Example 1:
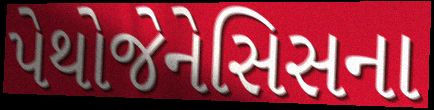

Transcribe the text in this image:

પેથોજેનેસિસના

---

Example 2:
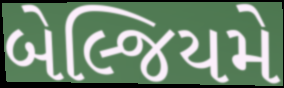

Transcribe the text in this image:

બેલ્જિયમે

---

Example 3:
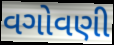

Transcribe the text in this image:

વગોવણી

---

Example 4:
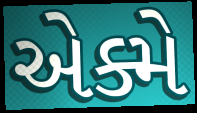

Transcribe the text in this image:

એક્મે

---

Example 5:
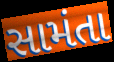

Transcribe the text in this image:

સામંતા